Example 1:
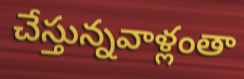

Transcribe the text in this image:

చేస్తున్నవాళ్లంతా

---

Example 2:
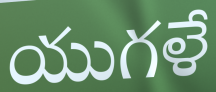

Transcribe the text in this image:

యుగళే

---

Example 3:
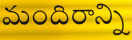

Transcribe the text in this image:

మందిరాన్ని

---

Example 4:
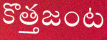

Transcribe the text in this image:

కొత్తజంట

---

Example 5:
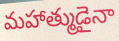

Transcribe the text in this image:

మహాత్ముడైనా